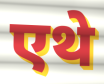
एथे